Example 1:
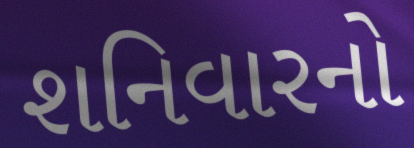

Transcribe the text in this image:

શનિવારનો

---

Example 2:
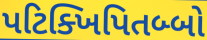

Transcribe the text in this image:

પટિક્ખિપિતબ્બો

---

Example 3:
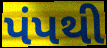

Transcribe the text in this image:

પંપથી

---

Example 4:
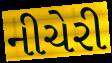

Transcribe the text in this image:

નીચેરી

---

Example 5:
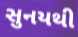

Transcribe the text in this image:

સુનયથી